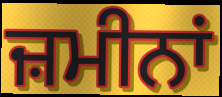
ਜ਼ਮੀਨਾਂ